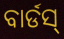
ବାର୍ଡସ୍